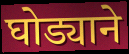
घोड्याने